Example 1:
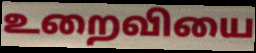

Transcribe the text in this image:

உறைவியை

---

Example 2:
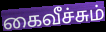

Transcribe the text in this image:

கைவீச்சும்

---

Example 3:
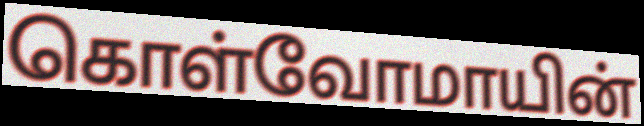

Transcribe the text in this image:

கொள்வோமாயின்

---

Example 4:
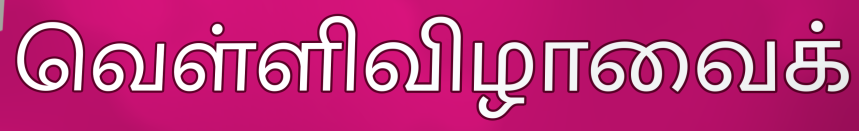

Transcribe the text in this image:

வெள்ளிவிழாவைக்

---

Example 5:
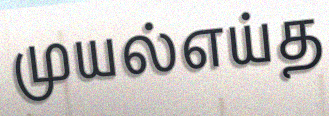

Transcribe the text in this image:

முயல்எய்த